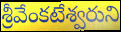
శ్రీవేంకటేశ్వరుని